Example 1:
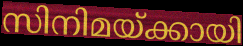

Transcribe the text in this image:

സിനിമയ്ക്കായി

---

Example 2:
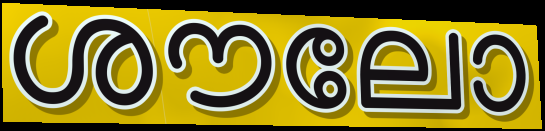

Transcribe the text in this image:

ശൗലോ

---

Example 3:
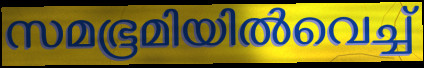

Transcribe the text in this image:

സമഭൂമിയിൽവെച്ച്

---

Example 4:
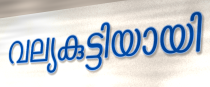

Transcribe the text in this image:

വല്യകുട്ടിയായി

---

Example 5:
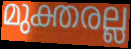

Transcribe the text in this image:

മുക്തരല്ല